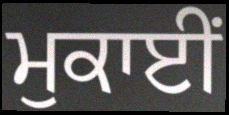
ਮੁਕਾਈਂ